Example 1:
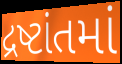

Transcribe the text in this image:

દ્રષ્ટાંતમાં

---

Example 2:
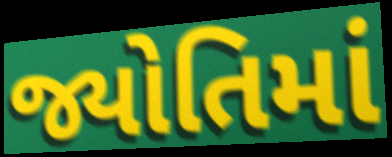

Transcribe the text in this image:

જ્યોતિમાં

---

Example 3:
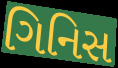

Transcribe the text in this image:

ગિનિસ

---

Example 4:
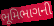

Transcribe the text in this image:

ભૂમિભાગની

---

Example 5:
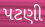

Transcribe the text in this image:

પટણી